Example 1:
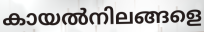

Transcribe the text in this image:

കായൽനിലങ്ങളെ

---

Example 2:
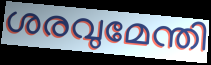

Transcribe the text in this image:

ശരവുമേന്തി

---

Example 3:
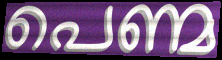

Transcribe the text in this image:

പെണ്മ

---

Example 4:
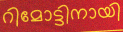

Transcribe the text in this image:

റിമോട്ടിനായി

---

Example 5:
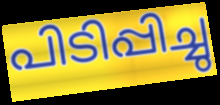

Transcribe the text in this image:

പിടിപ്പിച്ചു